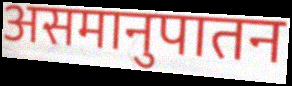
असमानुपातन